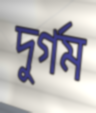
দুর্গম